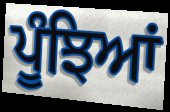
ਪੂੰਝਿਆਂ